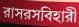
রাসরসবিহারী